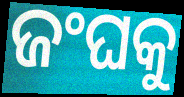
ଜଂଘକୁ